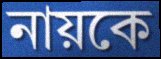
নায়কে